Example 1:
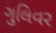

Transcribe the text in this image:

ગુલિવર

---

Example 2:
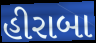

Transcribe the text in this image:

હીરાબા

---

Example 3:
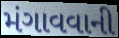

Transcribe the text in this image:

મંગાવવાની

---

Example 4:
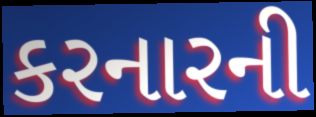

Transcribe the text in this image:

કરનારની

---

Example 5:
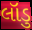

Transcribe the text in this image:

લૉડુ